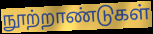
நூற்றாண்டுகள்